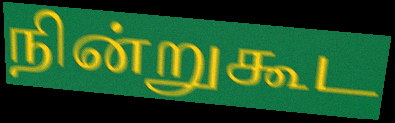
நின்றுகூட